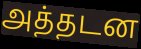
அத்தடன